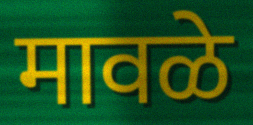
मावळे